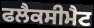
ਫਲੈਕਸੀਮੈਟ